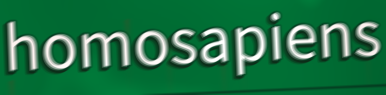
homosapiens